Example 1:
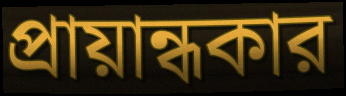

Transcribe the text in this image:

প্রায়ান্ধকার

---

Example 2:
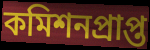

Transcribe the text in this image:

কমিশনপ্রাপ্ত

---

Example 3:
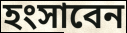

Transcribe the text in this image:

হংসাবেন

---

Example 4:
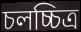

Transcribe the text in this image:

চলচ্চিত্র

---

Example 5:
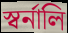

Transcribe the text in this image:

স্বর্নালি